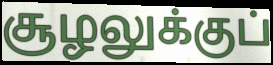
சூழலுக்குப்